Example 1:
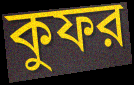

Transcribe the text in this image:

কুফর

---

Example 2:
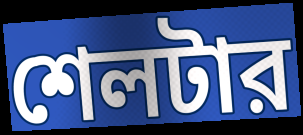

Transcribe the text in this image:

শেলটার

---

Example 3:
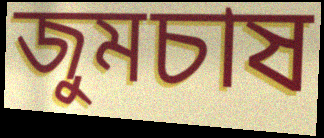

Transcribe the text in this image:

জুমচাষ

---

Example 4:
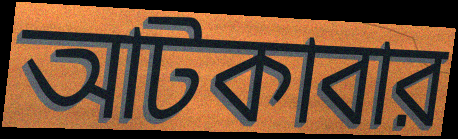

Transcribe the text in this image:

আটকাবার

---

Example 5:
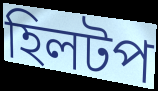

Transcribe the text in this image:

হিলটপ